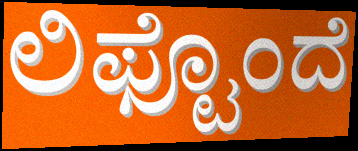
ಲಿಫ್ಟೊಂದೆ